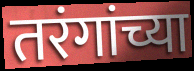
तरंगांच्या